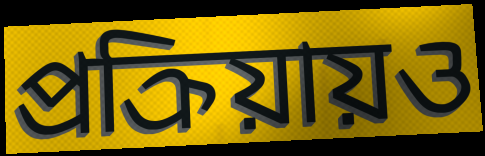
প্রক্রিয়ায়ও